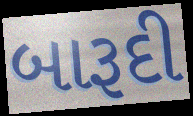
બારૂદી